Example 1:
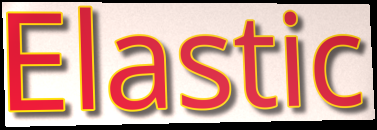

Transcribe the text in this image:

Elastic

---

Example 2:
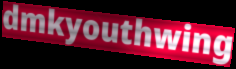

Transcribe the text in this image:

dmkyouthwing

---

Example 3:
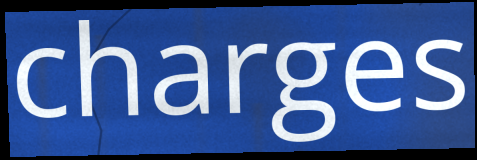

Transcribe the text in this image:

charges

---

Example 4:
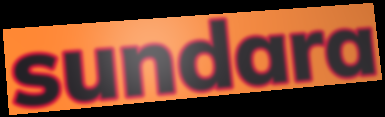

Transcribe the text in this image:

sundara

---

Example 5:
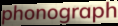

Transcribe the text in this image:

phonograph